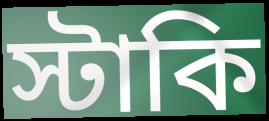
স্টাকি